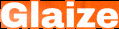
Glaize